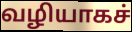
வழியாகச்